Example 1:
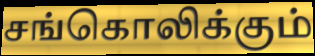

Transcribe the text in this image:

சங்கொலிக்கும்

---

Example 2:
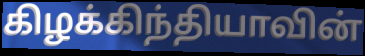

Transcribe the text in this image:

கிழக்கிந்தியாவின்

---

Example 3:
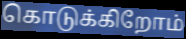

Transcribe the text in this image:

கொடுக்கிறோம்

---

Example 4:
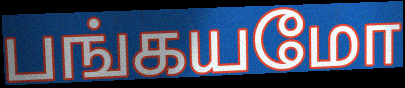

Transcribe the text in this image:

பங்கயமோ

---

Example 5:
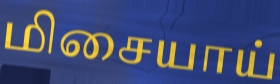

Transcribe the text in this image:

மிசையாய்